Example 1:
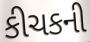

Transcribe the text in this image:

કીચકની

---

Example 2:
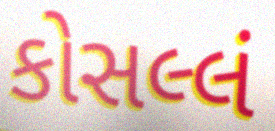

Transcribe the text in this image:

કોસલ્લં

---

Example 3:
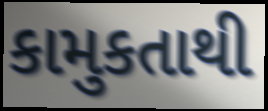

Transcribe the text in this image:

કામુકતાથી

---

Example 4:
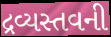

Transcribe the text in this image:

દ્રવ્યસ્તવની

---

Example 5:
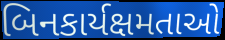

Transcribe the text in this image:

બિનકાર્યક્ષમતાઓ